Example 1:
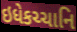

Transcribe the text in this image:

ઇધેકચ્ચાનિ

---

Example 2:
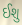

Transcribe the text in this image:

ઈશુ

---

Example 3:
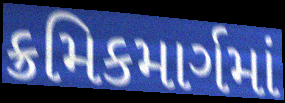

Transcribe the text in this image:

ક્રમિકમાર્ગમાં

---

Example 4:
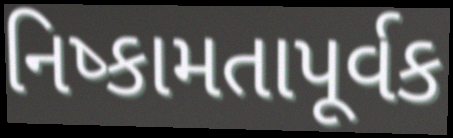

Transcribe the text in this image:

નિષ્કામતાપૂર્વક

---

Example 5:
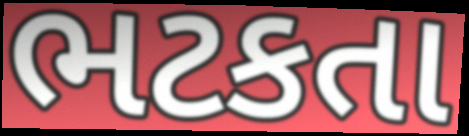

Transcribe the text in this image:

ભટકતા